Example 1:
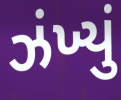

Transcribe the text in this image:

ઝંખ્યું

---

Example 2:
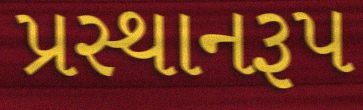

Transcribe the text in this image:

પ્રસ્થાનરૂપ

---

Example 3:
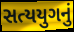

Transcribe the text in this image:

સત્યયુગનું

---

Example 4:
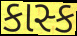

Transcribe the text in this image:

કાસ્ક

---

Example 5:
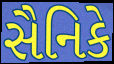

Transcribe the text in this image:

સૈનિકે